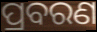
ପ୍ରବରଣ